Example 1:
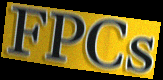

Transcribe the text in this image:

FPCs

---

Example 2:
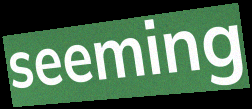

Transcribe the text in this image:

seeming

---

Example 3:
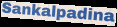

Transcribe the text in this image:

Sankalpadina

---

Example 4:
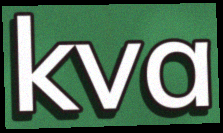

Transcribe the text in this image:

kva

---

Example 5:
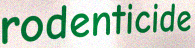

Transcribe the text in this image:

rodenticide